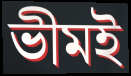
ভীমই